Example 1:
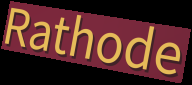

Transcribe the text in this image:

Rathode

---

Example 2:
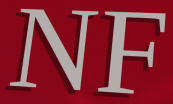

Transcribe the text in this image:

NF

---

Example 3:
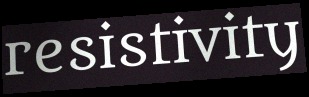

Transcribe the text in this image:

resistivity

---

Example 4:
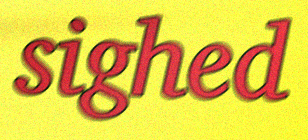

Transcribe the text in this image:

sighed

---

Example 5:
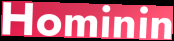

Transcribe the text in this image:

Hominin